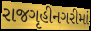
રાજગૃહીનગરીમાં